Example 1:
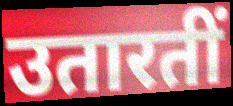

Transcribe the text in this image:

उतारतीं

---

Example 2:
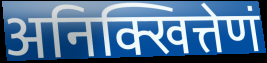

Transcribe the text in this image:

अनिक्खित्तेणं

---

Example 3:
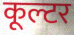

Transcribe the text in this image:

कूल्‍टर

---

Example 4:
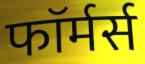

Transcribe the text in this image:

फॉर्मर्स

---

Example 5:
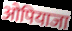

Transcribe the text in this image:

ओपियाजा